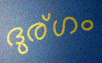
ദുര്ഗം